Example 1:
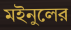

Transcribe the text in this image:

মইনুলের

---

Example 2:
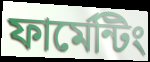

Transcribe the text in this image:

ফার্মেন্টিং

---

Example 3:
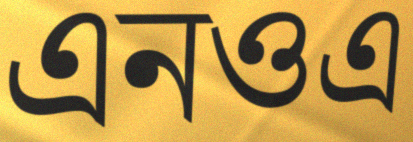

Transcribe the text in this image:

এনওএ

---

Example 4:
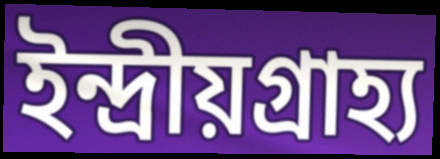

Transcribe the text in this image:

ইন্দ্রীয়গ্রাহ্য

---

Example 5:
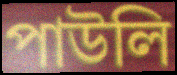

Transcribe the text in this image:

পাউলি